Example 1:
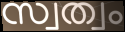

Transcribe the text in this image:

സ്വത്വം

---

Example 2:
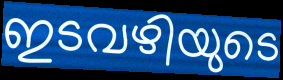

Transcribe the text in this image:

ഇടവഴിയുടെ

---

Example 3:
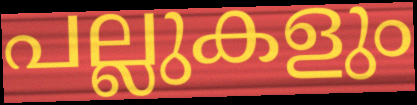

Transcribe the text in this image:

പല്ലുകളും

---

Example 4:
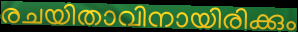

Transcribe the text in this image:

രചയിതാവിനായിരിക്കും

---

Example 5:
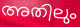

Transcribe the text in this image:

അതിലും